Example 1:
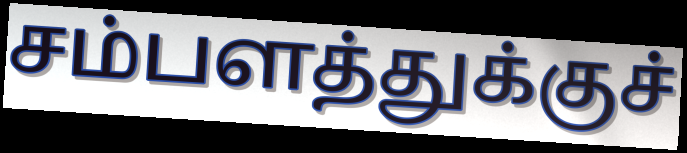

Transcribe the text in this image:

சம்பளத்துக்குச்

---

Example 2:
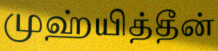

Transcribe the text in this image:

முஹ்யித்தீன்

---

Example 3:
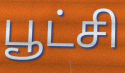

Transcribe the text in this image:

பூட்சி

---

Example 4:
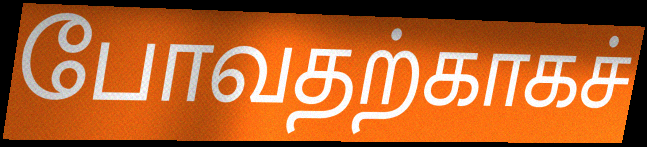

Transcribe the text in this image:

போவதற்காகச்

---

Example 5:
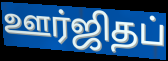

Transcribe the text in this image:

ஊர்ஜிதப்